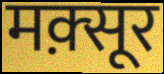
मक़्सूर